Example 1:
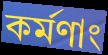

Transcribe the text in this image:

কর্মণাং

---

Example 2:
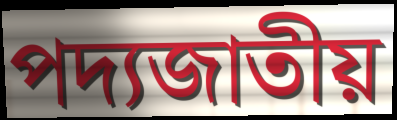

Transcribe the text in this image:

পদ্যজাতীয়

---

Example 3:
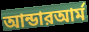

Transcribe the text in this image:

আন্ডারআর্ম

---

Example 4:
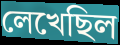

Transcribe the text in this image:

লেখেছিল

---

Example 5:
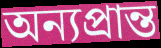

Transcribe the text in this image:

অন্যপ্রান্ত